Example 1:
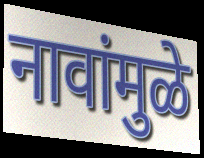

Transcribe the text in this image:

नावांमुळे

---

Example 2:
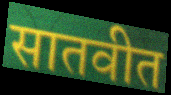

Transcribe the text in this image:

सातवीत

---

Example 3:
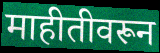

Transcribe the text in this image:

माहीतीवरून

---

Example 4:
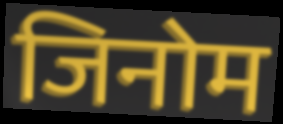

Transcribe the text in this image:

जिनोम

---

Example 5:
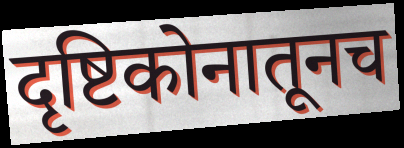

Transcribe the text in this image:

दृष्टिकोनातूनच